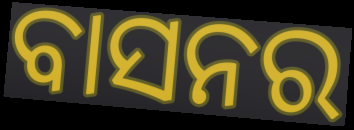
ବାସନର